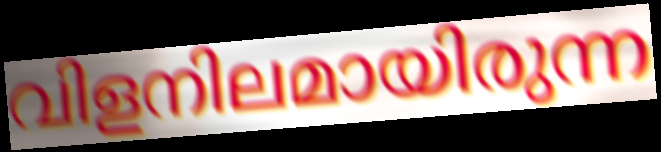
വിളനിലമായിരുന്ന